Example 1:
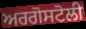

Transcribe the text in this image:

ਅਰਗੋਸਟੋਲੀ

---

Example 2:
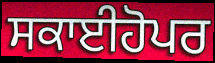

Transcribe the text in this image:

ਸਕਾਈਹੋਪਰ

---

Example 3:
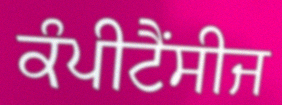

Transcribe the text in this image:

ਕੰਪੀਟੈਂਸੀਜ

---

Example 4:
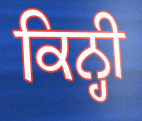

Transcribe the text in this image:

ਕਿਨ੍ਹੀ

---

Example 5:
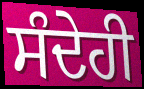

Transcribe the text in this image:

ਸੰਦੇਹੀ